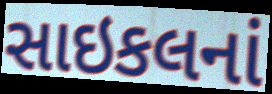
સાઇકલનાં